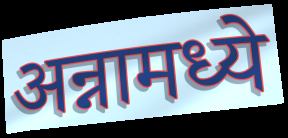
अन्नामध्ये